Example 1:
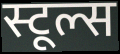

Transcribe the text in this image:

स्टूल्स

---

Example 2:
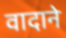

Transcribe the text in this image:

वादाने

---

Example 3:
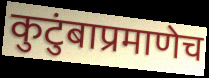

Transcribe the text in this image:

कुटुंबाप्रमाणेच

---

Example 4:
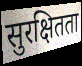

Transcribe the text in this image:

सुरक्षितता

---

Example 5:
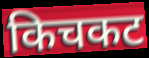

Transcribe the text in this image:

किचकट